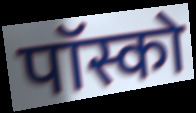
पॉस्‍को